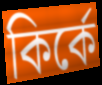
কির্কে